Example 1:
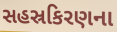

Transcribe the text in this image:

સહસ્રકિરણના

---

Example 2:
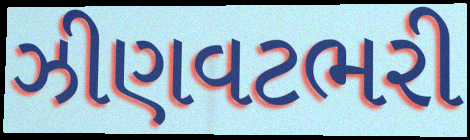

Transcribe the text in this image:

ઝીણવટભરી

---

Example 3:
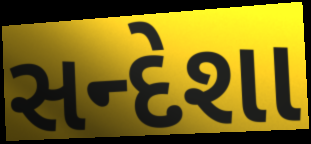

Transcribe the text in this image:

સન્દેશા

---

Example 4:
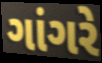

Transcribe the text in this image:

ગાંગરે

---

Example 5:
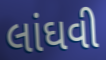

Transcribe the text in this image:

લાંઘવી